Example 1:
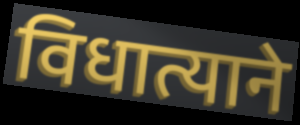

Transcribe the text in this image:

विधात्याने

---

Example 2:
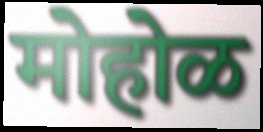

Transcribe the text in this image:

मोहोळ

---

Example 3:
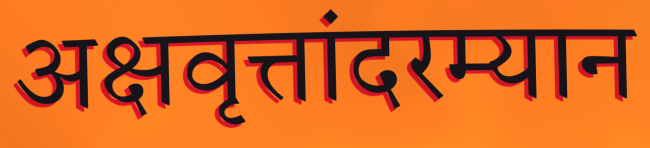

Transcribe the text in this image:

अक्षवृत्तांदरम्यान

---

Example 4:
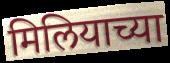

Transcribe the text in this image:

मिलियाच्या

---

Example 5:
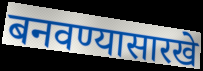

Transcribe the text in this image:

बनवण्यासारखे